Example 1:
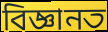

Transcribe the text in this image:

বিজ্ঞানত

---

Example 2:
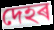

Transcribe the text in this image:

দেহৰ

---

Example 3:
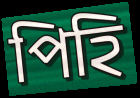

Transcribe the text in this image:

পিহি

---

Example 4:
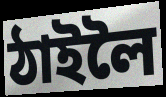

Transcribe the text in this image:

ঠাইলৈ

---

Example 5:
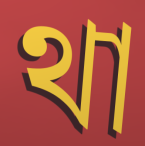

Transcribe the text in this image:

থা